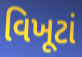
વિખૂટાં